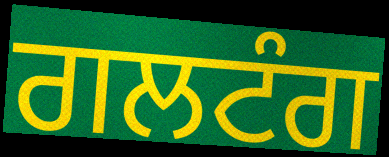
ਗਲਟੰਗ